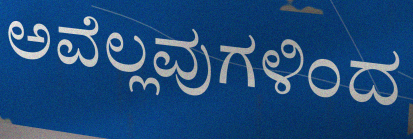
ಅವೆಲ್ಲವುಗಳಿಂದ